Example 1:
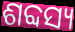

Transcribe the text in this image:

ଶବ୍ଦସ୍ଯ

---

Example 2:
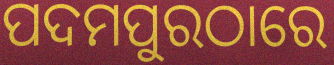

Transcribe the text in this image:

ପଦମପୁରଠାରେ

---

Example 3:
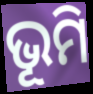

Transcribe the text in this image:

ଭୂମି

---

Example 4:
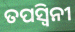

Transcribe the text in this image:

ତପସ୍ଵିନୀ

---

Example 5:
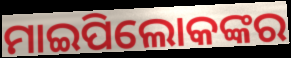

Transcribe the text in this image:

ମାଇପିଲୋକଙ୍କର